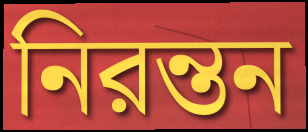
নিরন্তন